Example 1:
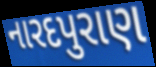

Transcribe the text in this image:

નારદપુરાણ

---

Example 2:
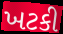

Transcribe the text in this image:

ખટકી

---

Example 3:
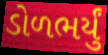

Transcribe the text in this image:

ડોળભર્યું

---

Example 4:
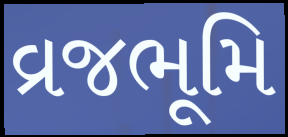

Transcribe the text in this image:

વ્રજભૂમિ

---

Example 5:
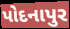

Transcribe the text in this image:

પોદનાપુર